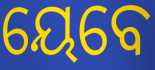
ୟେବେ